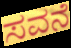
ಸವನೆ